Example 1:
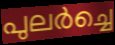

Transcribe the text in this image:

പുലർച്ചെ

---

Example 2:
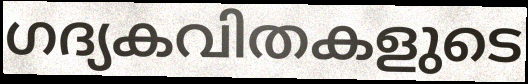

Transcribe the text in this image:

ഗദ്യകവിതകളുടെ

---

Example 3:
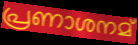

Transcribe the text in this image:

പ്രണാശനമ്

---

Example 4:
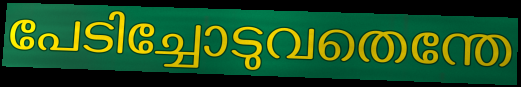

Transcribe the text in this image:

പേടിച്ചോടുവതെന്തേ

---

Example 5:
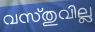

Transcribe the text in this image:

വസ്തുവില്ല